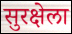
सुरक्षेला